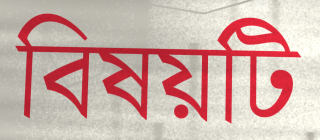
বিষয়টি